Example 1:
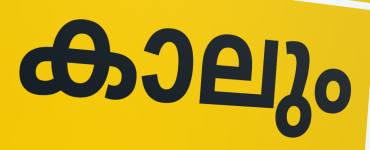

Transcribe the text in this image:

കാലും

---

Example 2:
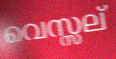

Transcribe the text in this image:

വെസ്സല്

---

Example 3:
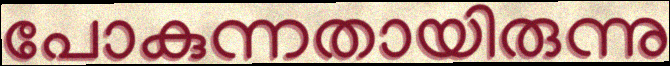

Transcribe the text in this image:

പോകുന്നതായിരുന്നു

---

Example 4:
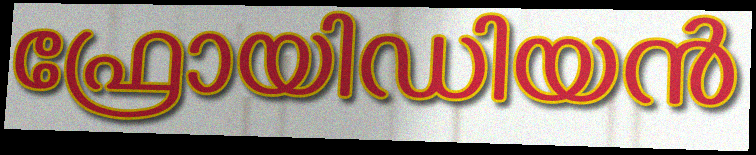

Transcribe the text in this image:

ഫ്രോയിഡിയൻ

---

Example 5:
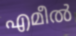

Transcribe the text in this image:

എമീൽ